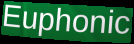
Euphonic